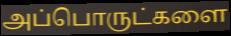
அப்பொருட்களை